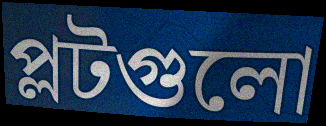
প্লটগুলো